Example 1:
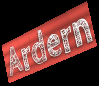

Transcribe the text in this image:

Ardern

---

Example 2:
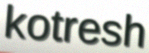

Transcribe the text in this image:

kotresh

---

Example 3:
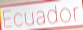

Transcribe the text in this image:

Ecuador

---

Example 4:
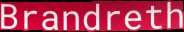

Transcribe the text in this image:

Brandreth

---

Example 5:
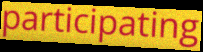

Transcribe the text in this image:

participating